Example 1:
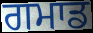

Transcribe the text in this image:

ਗਮਾਡ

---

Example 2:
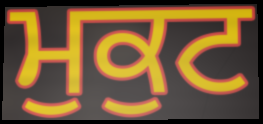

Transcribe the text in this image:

ਮੁਕੁਟ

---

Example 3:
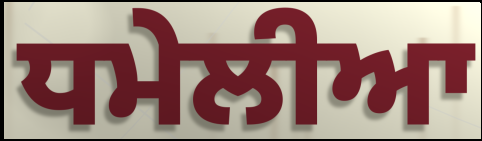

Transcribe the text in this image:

ਧਮੇਲੀਆ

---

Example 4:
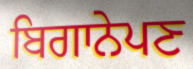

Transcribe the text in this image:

ਬਿਗਾਨੇਪਣ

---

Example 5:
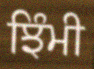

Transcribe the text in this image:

ਝਿੰਮੀ